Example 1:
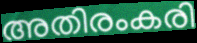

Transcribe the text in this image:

അതിരംകരി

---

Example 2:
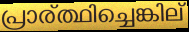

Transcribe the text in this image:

പ്രാര്ത്ഥിച്ചെങ്കില്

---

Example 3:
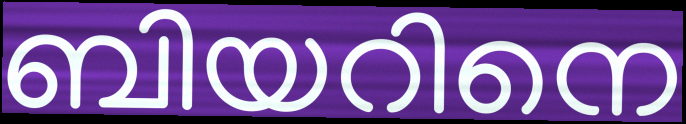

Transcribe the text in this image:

ബിയറിനെ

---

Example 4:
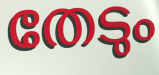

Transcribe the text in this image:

തേടും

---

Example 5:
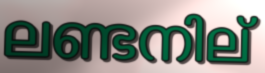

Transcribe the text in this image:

ലണ്ടനില്